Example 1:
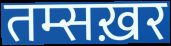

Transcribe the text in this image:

तम्सख़र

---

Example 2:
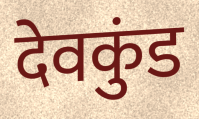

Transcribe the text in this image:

देवकुंड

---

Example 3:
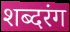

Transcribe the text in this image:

शब्दरंग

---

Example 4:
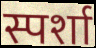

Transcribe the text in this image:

स्पर्शा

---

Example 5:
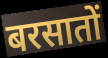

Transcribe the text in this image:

बरसातों